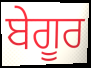
ਬੇਗੂਰ